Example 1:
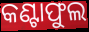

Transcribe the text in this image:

କଣ୍ଟାଫୁଲ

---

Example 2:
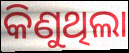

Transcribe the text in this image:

କିଣୁଥିଲା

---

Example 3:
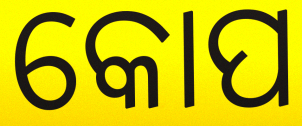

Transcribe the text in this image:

କୋପ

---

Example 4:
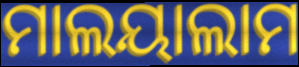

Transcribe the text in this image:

ମାଲୟାଲାମ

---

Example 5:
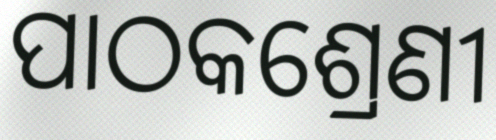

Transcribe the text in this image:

ପାଠକଶ୍ରେଣୀ